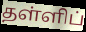
தள்ளிப்